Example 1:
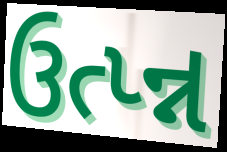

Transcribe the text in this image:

ઉત્પ્ન્ન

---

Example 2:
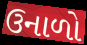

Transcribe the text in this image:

ઉનાળો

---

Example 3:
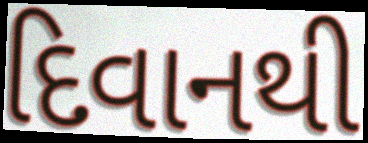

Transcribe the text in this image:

દિવાનથી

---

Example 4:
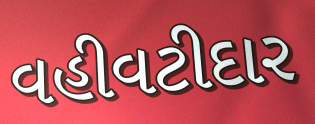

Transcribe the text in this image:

વહીવટીદાર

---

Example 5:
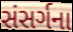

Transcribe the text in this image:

સંસર્ગના